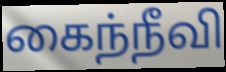
கைந்நீவி